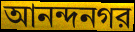
আনন্দনগর